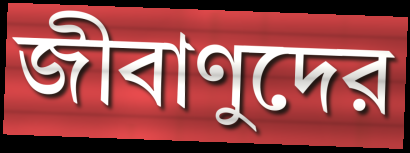
জীবাণুদের